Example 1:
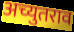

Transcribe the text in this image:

अच्युतराव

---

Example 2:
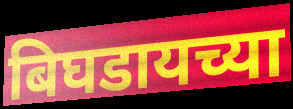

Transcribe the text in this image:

बिघडायच्या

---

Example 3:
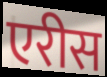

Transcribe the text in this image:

एरीस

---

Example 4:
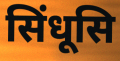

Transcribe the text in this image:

सिंधूसि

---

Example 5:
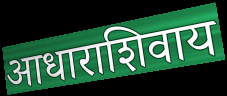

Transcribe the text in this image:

आधाराशिवाय